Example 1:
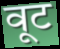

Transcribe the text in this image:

वूट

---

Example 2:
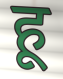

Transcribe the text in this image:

हू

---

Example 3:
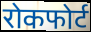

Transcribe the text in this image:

रोकफोर्ट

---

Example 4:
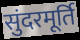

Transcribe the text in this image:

सुंदरमूर्ति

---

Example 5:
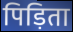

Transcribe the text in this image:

पिड़िता